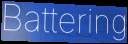
Battering